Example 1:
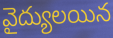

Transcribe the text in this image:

వైద్యులయిన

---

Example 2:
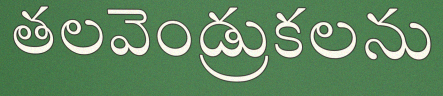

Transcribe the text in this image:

తలవెండ్రుకలను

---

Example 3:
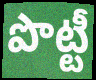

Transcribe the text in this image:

పొట్టీ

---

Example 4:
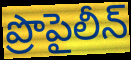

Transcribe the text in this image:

ప్రొపైలీన్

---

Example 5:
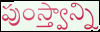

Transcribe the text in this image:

పుంస్త్వాన్ని